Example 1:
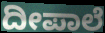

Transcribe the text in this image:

ದೀಪಾಲೆ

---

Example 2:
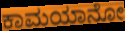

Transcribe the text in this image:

ಕಾಮಯಾನೋ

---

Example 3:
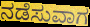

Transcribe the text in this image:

ನಡೆಸುವಾಗ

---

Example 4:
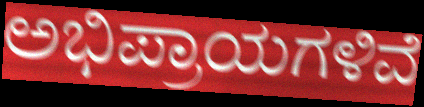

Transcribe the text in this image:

ಅಭಿಪ್ರಾಯಗಳಿವೆ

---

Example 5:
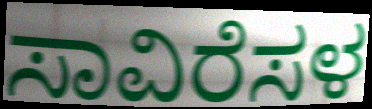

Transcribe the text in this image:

ಸಾವಿರೆಸಳ